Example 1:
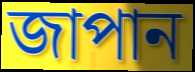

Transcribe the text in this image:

জাপান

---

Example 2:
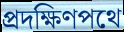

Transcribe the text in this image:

প্রদক্ষিণপথে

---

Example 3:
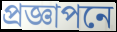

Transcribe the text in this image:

প্রজ্ঞাপনে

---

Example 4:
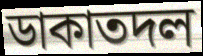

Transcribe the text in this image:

ডাকাতদল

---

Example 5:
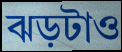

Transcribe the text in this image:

ঝড়টাও